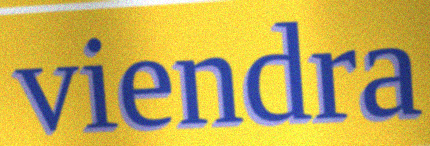
viendra